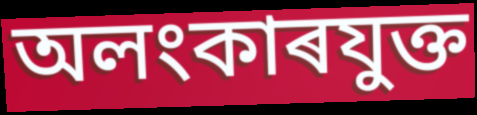
অলংকাৰযুক্ত